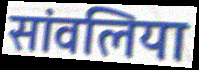
सांवलिया